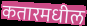
कतारमधील